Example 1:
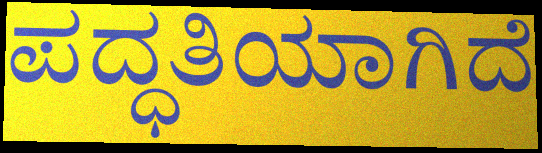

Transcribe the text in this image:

ಪದ್ಧತಿಯಾಗಿದೆ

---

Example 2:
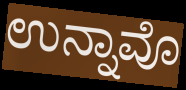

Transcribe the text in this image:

ಉನ್ನಾವೊ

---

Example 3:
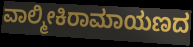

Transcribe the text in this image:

ವಾಲ್ಮೀಕಿರಾಮಾಯಣದ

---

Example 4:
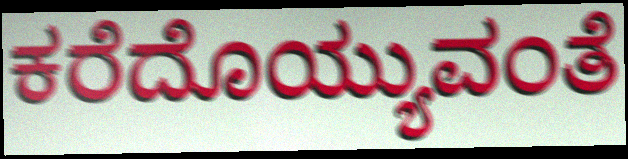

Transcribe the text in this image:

ಕರೆದೊಯ್ಯುವಂತೆ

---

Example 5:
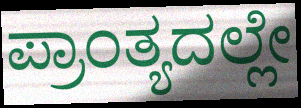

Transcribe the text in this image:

ಪ್ರಾಂತ್ಯದಲ್ಲೇ